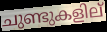
ചുണ്ടുകളില്